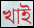
খাই